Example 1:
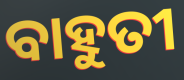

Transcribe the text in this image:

ବାହୁତୀ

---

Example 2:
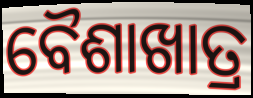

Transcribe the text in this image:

ବୈଶାଖାତ୍ର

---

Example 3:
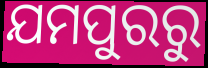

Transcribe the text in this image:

ଯମପୁରରୁ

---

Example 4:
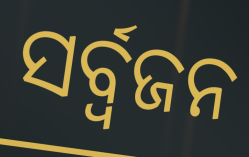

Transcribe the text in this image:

ସର୍ବ୍ବଜନ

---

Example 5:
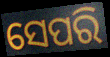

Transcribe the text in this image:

ସେପରି